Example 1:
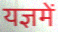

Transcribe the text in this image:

यज्ञमें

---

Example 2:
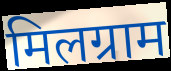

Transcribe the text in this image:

मिलग्राम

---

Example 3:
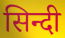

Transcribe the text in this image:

सिन्दी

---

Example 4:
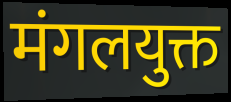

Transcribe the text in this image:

मंगलयुक्त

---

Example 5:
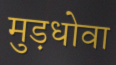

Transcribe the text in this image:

मुड़धोवा